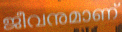
ജീവനുമാണ്